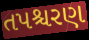
તપશ્ચરણ